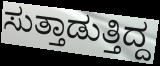
ಸುತ್ತಾಡುತ್ತಿದ್ದ